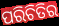
ପରିଚିତିର